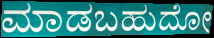
ಮಾಡಬಹುದೋ